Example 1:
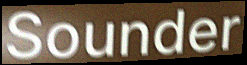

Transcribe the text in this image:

Sounder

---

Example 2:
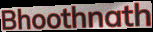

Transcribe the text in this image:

Bhoothnath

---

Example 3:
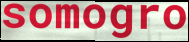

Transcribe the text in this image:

somogro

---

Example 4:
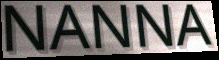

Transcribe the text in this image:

NANNA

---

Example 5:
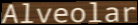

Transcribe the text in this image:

Alveolar